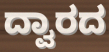
ದ್ವಾರದ